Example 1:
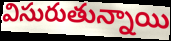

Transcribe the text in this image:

విసురుతున్నాయి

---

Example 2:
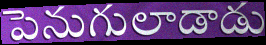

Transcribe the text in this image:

పెనుగులాడాడు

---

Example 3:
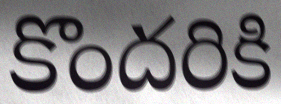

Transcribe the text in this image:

కొందరికి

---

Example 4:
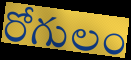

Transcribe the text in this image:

రోగులం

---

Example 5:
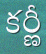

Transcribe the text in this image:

కర్ణీ